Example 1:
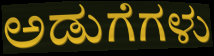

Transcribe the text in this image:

ಅಡುಗೆಗಳು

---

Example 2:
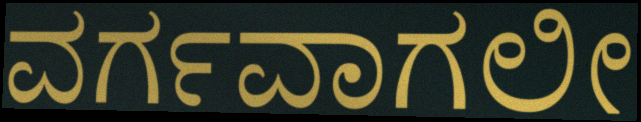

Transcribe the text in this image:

ವರ್ಗವಾಗಲೀ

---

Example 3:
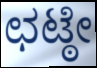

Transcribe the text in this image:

ಛಟ್ಠೇ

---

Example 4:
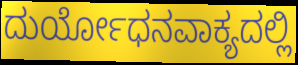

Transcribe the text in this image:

ದುರ್ಯೋಧನವಾಕ್ಯದಲ್ಲಿ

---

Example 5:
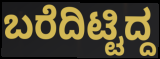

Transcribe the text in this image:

ಬರೆದಿಟ್ಟಿದ್ದ